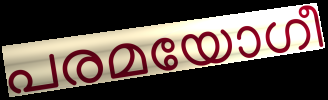
പരമയോഗീ